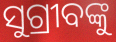
ସୁଗ୍ରୀବଙ୍କୁ